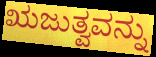
ಋಜುತ್ವವನ್ನು